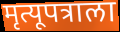
मृत्यूपत्राला